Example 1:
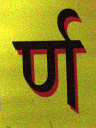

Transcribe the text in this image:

र्ण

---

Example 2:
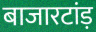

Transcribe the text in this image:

बाजारटांड़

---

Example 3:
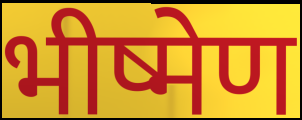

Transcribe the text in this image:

भीष्मेण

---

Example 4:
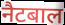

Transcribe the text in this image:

नैटबाल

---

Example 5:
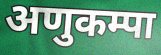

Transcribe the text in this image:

अणुकम्पा